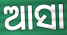
ଆସା